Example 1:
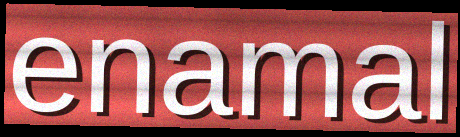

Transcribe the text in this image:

enamal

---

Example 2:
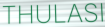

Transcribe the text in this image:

THULASI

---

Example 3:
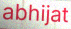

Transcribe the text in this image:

abhijat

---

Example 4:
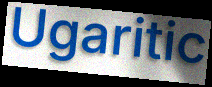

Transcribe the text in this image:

Ugaritic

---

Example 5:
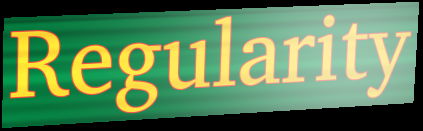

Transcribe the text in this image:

Regularity